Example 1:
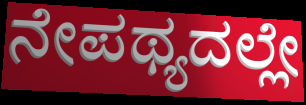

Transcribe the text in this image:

ನೇಪಥ್ಯದಲ್ಲೇ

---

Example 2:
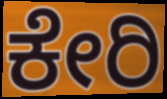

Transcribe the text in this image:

ಕೇರಿ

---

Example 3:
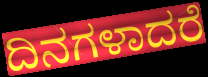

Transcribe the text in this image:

ದಿನಗಳಾದರೆ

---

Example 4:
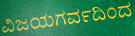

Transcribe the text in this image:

ವಿಜಯಗರ್ವದಿಂದ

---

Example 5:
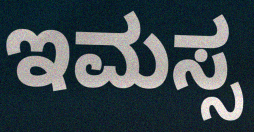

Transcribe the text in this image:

ಇಮಸ್ಸ